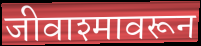
जीवाश्मावरून